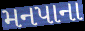
મનપાના